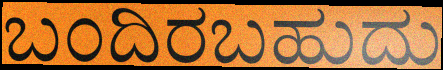
ಬಂದಿರಬಹುದು